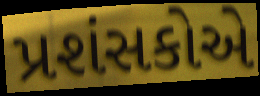
પ્રશંસકોએ